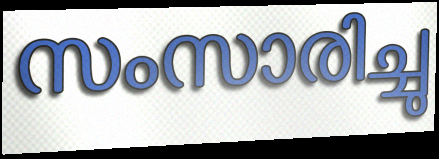
സംസാരിച്ചു